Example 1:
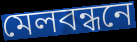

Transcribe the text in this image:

মেলবন্ধনে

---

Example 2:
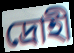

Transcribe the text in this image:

দ্রোহী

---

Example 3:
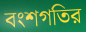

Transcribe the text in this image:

বংশগতির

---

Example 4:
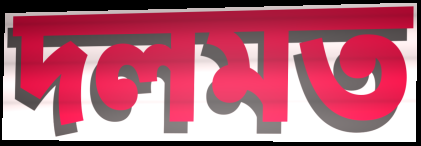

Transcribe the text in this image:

দলমত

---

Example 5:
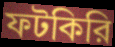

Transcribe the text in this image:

ফটকিরি